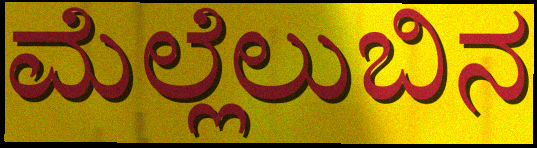
ಮೆಲ್ಲೆಲುಬಿನ